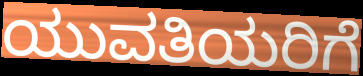
ಯುವತಿಯರಿಗೆ